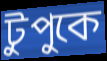
টুপুকে